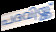
പദവിയ്ക്ക്